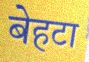
बेहटा